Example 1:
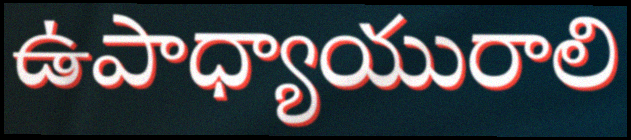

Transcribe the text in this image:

ఉపాధ్యాయురాలి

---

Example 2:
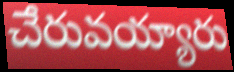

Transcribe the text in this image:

చేరువయ్యారు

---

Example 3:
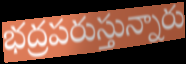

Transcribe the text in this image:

భద్రపరుస్తున్నారు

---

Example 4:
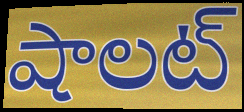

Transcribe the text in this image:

షాలట్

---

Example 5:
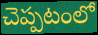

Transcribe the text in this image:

చెప్పటంలో